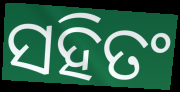
ସହିତଂ